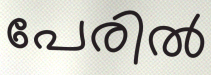
പേരിൽ